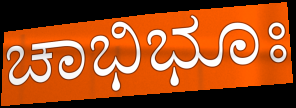
ಚಾಭಿಭೂಃ